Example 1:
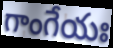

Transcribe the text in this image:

గాంగేయః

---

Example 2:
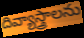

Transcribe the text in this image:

దివ్యాస్త్రాలను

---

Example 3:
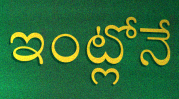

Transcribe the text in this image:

ఇంట్లోనే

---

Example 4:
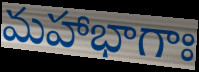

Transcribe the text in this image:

మహాభాగాః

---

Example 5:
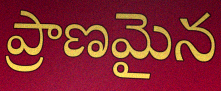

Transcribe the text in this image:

ప్రాణమైన